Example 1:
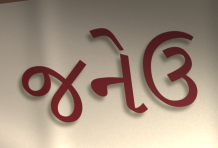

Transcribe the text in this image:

જનેઉ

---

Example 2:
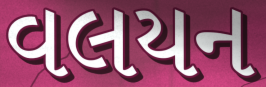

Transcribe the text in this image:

વલયન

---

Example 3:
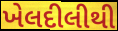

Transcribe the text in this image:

ખેલદીલીથી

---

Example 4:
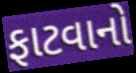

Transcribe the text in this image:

ફાટવાનો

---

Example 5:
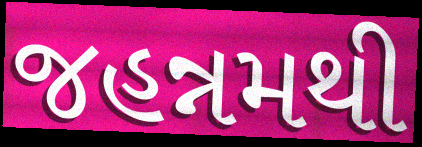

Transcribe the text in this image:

જહન્નમથી